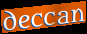
deccan